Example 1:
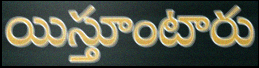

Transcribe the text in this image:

యిస్తూంటారు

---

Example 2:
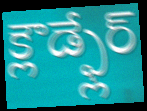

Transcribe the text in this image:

క్లౌడ్ఫ్లేర్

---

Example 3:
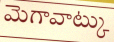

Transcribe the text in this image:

మెగావాట్కు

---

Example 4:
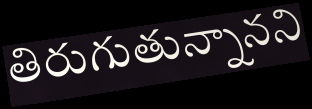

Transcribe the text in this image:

తిరుగుతున్నానని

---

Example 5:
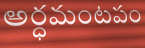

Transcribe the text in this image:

అర్ధమంటపం